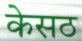
केसठ